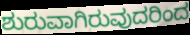
ಶುರುವಾಗಿರುವುದರಿಂದ